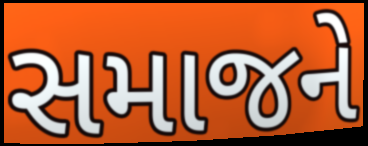
સમાજને